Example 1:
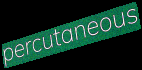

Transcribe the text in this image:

percutaneous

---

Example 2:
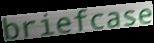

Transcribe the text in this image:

briefcase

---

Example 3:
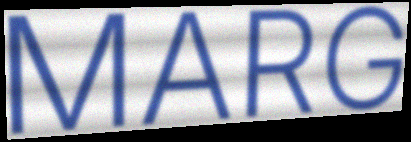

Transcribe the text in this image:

MARG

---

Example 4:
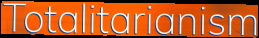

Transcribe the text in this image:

Totalitarianism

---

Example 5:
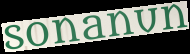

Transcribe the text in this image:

sonanun